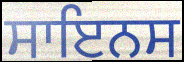
ਸਾਇਨਸ